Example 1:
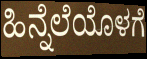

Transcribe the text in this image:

ಹಿನ್ನೆಲೆಯೊಳಗೆ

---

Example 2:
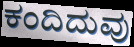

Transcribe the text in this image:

ಕಂದಿದುವು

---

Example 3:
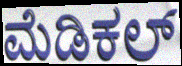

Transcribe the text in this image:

ಮೆಡಿಕಲ್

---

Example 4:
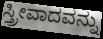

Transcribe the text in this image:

ಸ್ತ್ರೀವಾದವನ್ನು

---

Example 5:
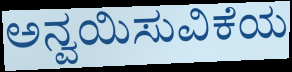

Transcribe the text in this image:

ಅನ್ವಯಿಸುವಿಕೆಯ